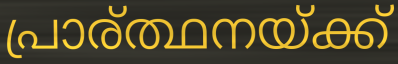
പ്രാര്ത്ഥനയ്ക്ക്